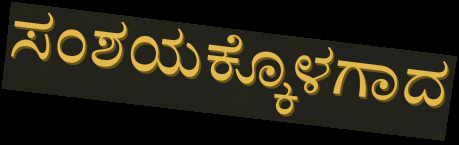
ಸಂಶಯಕ್ಕೊಳಗಾದ